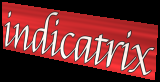
indicatrix